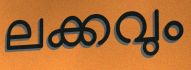
ലക്കവും